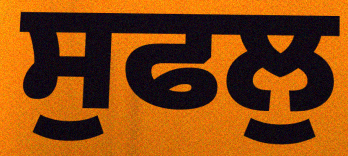
ਸੁਫਲੁ